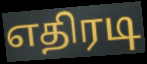
எதிரடி